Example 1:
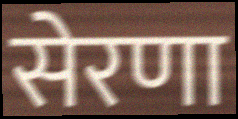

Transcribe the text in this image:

सेरणा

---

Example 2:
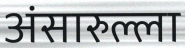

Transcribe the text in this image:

अंसारुल्ला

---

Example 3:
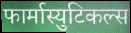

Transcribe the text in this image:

फार्मास्युटिकल्स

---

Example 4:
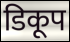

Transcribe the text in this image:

डिकूप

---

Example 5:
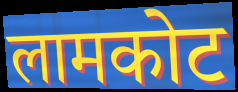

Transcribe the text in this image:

लामकोट